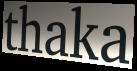
thaka